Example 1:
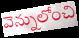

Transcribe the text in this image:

వెన్నులోంచి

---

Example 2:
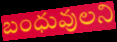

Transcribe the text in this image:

బంధువులని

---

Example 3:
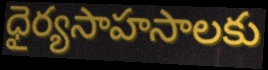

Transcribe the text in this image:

ధైర్యసాహసాలకు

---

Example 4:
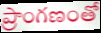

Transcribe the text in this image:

ప్రాంగణంతో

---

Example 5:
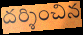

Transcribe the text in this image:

దర్శించిన